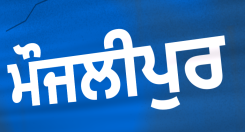
ਮੌਜਲੀਪੁਰ